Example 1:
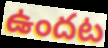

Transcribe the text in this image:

ఉందట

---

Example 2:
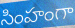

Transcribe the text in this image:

సింహంగా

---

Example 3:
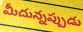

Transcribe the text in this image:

మీదున్నప్పుడు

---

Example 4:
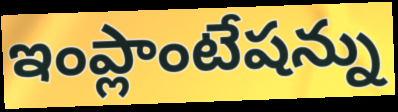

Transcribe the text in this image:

ఇంప్లాంటేషన్ను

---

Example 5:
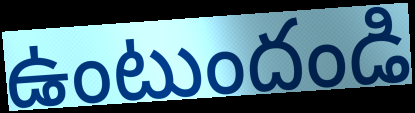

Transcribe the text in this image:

ఉంటుందండి